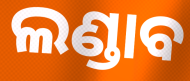
ଲଣ୍ଡାବ